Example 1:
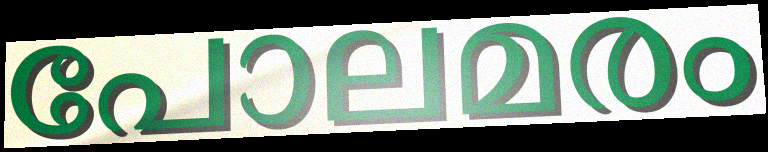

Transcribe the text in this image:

പോലമരം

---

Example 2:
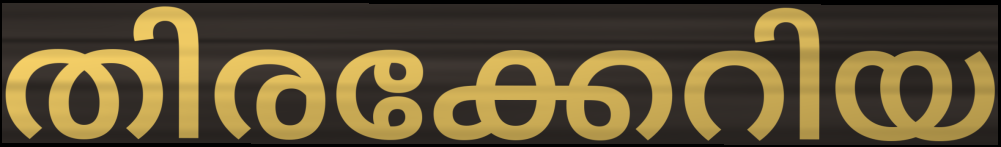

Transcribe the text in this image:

തിരക്കേറിയ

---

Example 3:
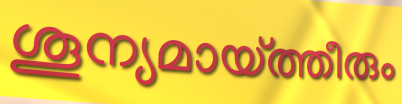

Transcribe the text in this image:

ശൂന്യമായ്ത്തീരും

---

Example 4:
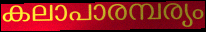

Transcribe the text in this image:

കലാപാരമ്പര്യം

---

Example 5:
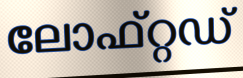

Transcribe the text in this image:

ലോഫ്റ്റഡ്